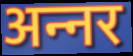
अन्नर